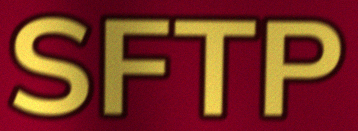
SFTP